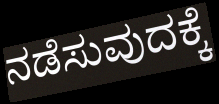
ನಡೆಸುವುದಕ್ಕೆ